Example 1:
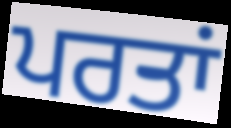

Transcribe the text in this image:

ਪਰਤਾਂ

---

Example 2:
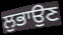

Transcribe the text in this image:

ਲੁਭਾਉਣ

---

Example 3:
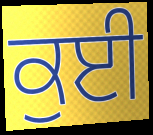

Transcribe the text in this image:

ਕੁਈ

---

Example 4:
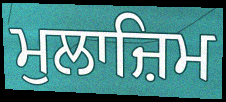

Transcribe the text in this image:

ਮੁਲਾਜ਼ਿਮ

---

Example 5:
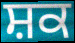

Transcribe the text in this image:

ਸ਼ਕ